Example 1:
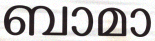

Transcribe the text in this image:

ബാമാ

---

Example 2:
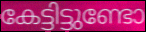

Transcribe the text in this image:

കേട്ടിട്ടുണ്ടോ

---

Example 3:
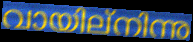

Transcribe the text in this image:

വായില്നിന്നു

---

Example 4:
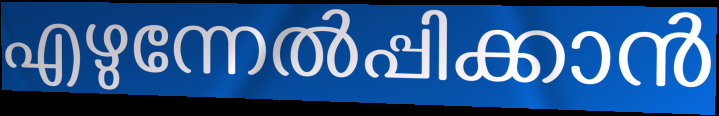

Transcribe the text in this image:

എഴുന്നേൽപ്പിക്കാൻ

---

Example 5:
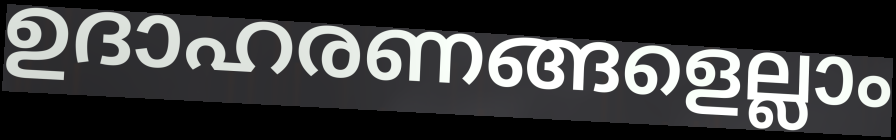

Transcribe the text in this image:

ഉദാഹരണങ്ങളെല്ലാം